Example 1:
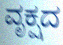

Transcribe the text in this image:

ವೃಕ್ಷದ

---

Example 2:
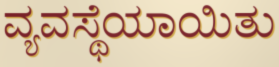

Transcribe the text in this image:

ವ್ಯವಸ್ಥೆಯಾಯಿತು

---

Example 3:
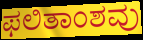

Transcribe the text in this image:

ಫಲಿತಾಂಶವು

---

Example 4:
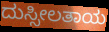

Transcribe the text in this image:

ದುಸ್ಸೀಲತಾಯ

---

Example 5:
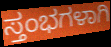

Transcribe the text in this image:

ಸ್ತಂಭಗಳಾಗಿ